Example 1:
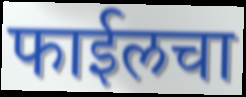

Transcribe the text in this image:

फाईलचा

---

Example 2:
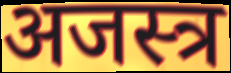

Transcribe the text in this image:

अजस्त्र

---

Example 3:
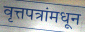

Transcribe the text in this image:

वृत्तपत्रांमधून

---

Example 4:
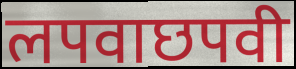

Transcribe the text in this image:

लपवाछपवी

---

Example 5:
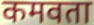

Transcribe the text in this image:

कमवता